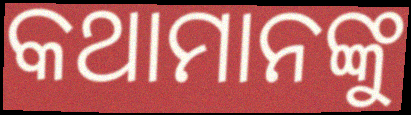
କଥାମାନଙ୍କୁ